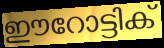
ഈറോട്ടിക്